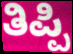
ತಿಪ್ಪಿ